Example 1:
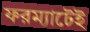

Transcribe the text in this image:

ফরম্যাটেই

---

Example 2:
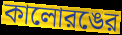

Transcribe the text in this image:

কালোরঙের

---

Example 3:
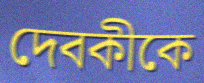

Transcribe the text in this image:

দেবকীকে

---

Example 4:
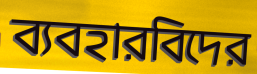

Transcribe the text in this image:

ব্যবহারবিদের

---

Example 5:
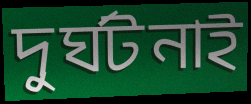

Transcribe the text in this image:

দুর্ঘটনাই